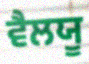
ਵੈਲਯੂ